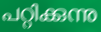
പറ്റിക്കുന്നു